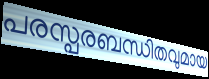
പരസ്പരബന്ധിതവുമായ